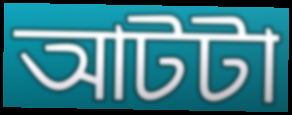
আটটা